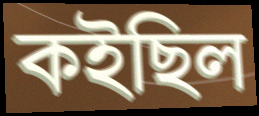
কইছিল